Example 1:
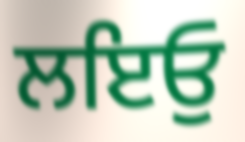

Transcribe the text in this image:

ਲਇਓੁ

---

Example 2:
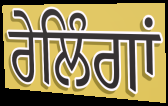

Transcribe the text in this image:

ਰੇਲਿੰਗਾਂ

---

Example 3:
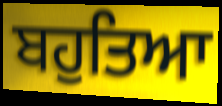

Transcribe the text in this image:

ਬਹੁਤਿਆ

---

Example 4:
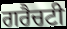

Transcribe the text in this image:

ਗਰੈਚਟੀ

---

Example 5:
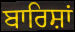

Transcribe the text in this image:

ਬਾਰਿਸ਼ਾਂ